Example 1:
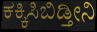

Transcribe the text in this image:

ಕಕ್ಕಿಸಿಬಿಡ್ತೀನಿ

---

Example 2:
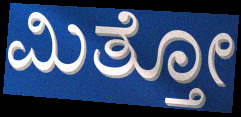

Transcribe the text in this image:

ಮಿತ್ತೋ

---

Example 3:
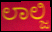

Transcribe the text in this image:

ಲಾಲ್ಜಿ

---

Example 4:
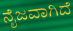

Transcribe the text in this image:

ನೈಜವಾಗಿದೆ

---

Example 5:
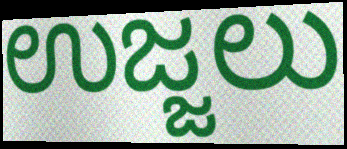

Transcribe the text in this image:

ಉಜ್ಜಲು